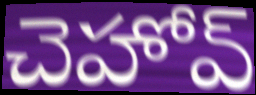
చెహోవ్